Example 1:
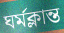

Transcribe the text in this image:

ঘর্মক্লান্ত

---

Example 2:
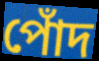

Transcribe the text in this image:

পোঁদ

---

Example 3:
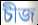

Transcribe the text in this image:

চীজ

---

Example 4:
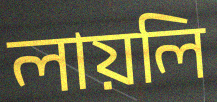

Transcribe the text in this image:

লায়লি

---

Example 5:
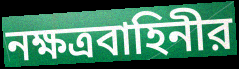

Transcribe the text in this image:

নক্ষত্রবাহিনীর